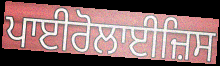
ਪਾਈਰੋਲਾਈਜ਼ਿਸ